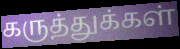
கருத்துக்கள்